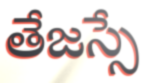
తేజస్సే